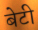
बेटी